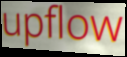
upflow